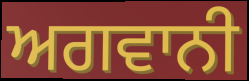
ਅਗਵਾਨੀ